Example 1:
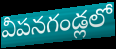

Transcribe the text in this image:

వీపనగండ్లలో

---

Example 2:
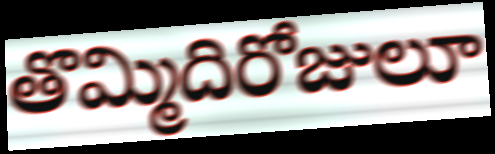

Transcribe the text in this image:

తొమ్మిదిరోజులూ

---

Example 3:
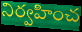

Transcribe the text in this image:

నిర్వహించ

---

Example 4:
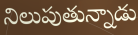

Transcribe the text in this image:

నిలుపుతున్నాడు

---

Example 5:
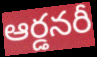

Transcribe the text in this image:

ఆర్డనరీ